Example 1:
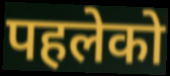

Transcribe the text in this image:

पहलेको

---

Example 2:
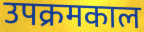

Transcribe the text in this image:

उपक्रमकाल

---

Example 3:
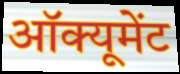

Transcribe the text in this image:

ऑक्यूमेंट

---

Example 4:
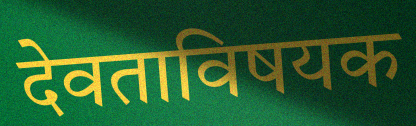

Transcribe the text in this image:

देवताविषयक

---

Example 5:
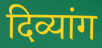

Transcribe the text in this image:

दिव्यांग